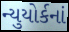
ન્યુયોર્કનાં